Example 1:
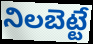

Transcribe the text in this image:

నిలబెట్టే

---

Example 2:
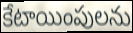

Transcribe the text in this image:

కేటాయింపులను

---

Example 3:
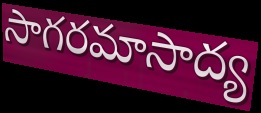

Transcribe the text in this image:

సాగరమాసాద్య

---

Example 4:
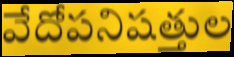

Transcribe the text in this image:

వేదోపనిషత్తుల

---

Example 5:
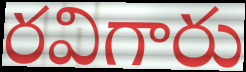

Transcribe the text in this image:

రవిగారు